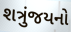
શત્રુંજયનો